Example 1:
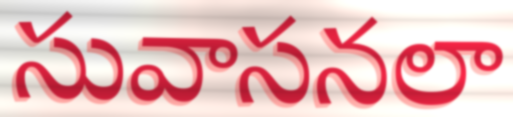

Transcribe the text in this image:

సువాసనలా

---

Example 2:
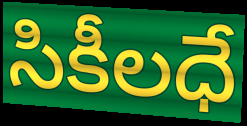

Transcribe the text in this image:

సికీలధే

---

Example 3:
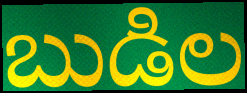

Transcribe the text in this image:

బుడిల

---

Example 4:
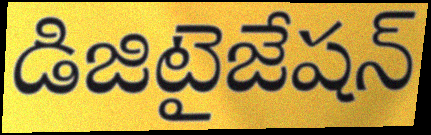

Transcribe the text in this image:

డిజిటైజేషన్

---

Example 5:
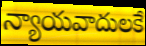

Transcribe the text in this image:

న్యాయవాదులకే